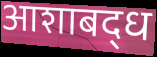
आशाबद्ध